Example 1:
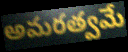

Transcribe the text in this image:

అమరత్వమే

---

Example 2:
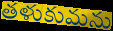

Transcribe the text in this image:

తళుకుమను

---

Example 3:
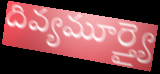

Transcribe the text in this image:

దివ్యమూర్త్యై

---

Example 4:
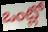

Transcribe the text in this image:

ఒంట్లో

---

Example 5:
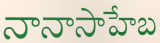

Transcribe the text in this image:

నానాసాహేబ